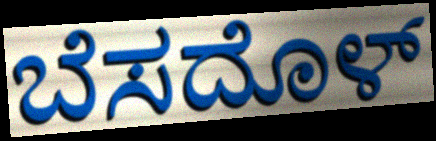
ಬೆಸದೊಳ್